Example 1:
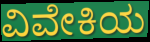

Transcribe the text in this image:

ವಿವೇಕಿಯ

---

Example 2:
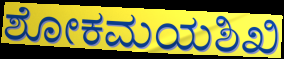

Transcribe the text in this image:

ಶೋಕಮಯಶಿಖಿ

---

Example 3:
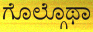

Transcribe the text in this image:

ಗೊಲ್ಗೊಥಾ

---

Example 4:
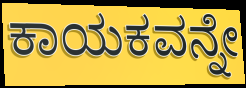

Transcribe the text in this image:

ಕಾಯಕವನ್ನೇ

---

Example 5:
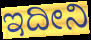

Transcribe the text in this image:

ಇದೀನಿ